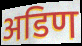
अडिण